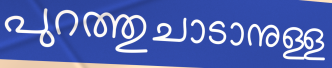
പുറത്തുചാടാനുള്ള